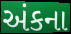
અંકના